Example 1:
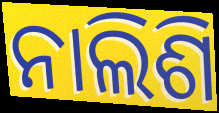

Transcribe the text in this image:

ନାଲିଶି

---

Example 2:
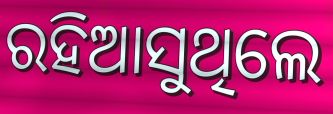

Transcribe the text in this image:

ରହିଆସୁଥିଲେ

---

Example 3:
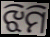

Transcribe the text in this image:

ଝିମି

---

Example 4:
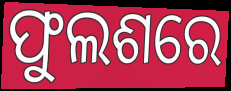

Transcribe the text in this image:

ଫୁଲଶରେ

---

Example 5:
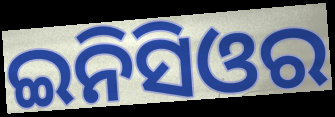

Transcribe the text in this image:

ଇନିସିଓର